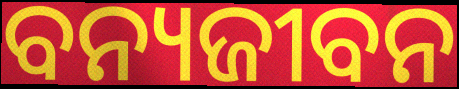
ବନ୍ୟଜୀବନ